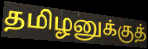
தமிழனுக்குத்